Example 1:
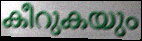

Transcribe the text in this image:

കീറുകയും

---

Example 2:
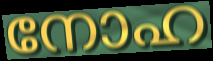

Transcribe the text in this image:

നോഹ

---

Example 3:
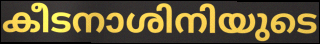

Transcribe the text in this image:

കീടനാശിനിയുടെ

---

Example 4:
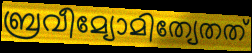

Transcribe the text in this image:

ബ്രവീമ്യോമിത്യേതത്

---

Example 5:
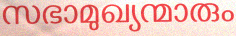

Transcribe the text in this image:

സഭാമുഖ്യന്മാരും